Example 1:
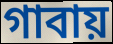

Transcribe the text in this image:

গাবায়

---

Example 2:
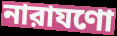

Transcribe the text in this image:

নারাযণো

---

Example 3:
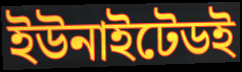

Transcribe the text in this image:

ইউনাইটেডই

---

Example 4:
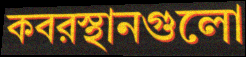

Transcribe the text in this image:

কবরস্থানগুলো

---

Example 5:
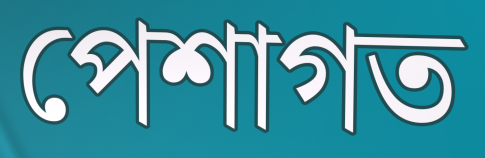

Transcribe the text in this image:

পেশাগত